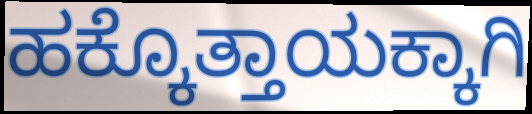
ಹಕ್ಕೊತ್ತಾಯಕ್ಕಾಗಿ